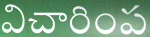
విచారింప